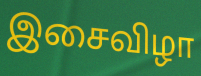
இசைவிழா